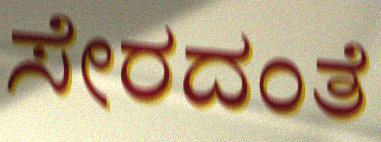
ಸೇರದಂತೆ